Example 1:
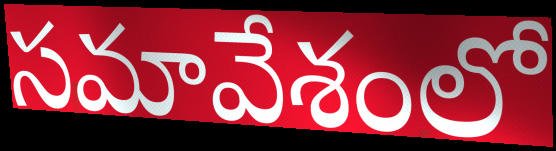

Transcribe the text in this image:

సమావేశంలో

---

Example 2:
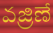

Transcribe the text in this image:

వజ్రిణే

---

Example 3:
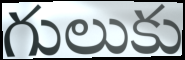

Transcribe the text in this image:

గులుకు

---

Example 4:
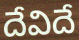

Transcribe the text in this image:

దేవిదే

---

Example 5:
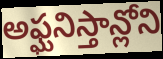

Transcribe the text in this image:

అఫ్ఘనిస్తాన్లోని